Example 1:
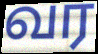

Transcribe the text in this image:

வர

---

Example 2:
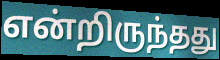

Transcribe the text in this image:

என்றிருந்தது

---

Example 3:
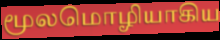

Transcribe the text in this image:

மூலமொழியாகிய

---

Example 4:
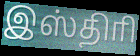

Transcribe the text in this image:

இஸ்திரி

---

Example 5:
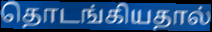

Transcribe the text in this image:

தொடங்கியதால்